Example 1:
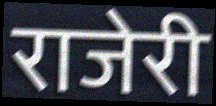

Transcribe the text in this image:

राजेरी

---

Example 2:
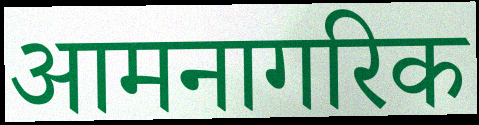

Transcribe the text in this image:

आमनागरिक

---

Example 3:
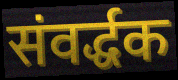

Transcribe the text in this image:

संवर्द्धक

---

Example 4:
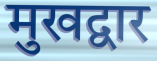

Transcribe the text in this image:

मुखद्वार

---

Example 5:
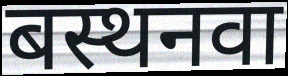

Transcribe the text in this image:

बस्थनवा